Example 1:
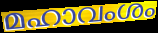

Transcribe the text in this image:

മഹാവംശം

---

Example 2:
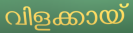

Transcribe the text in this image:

വിളക്കായ്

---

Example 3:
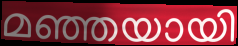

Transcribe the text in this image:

മഞ്ഞയായി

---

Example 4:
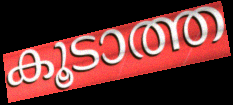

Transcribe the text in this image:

കൂടാത്ത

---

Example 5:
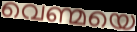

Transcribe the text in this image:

വെണ്മയെ